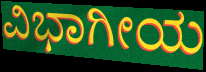
ವಿಭಾಗೀಯ